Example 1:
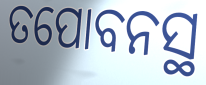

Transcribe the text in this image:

ତପୋବନସ୍ଥ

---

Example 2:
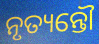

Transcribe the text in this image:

ନୃତ୍ୟନ୍ତୌ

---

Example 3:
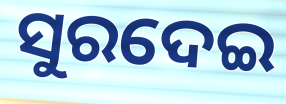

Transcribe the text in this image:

ସୁରଦେଇ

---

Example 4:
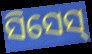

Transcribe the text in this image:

ସିସେସ୍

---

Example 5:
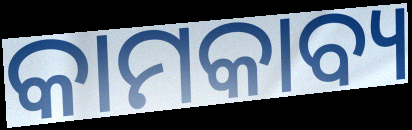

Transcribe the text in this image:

କାମକାବ୍ୟ